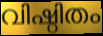
വിഷ്ഠിതം